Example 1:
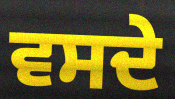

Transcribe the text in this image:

ਵਸਦੇ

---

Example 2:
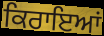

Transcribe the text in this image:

ਕਿਰਾਇਆਂ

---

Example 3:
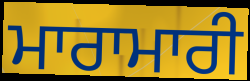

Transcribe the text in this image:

ਮਾਰਾਮਾਰੀ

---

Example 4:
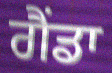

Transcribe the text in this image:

ਗੈਂਡਾ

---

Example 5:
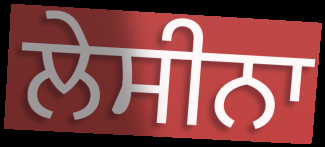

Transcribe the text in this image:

ਲੇਸੀਨਾ